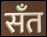
सँत